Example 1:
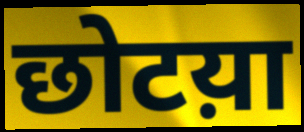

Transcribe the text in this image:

छोटय़ा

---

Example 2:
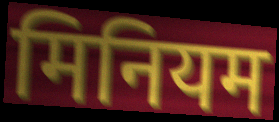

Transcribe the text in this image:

मिनियम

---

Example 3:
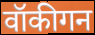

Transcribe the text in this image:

वॉकीगन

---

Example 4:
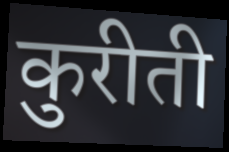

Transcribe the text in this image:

कुरीती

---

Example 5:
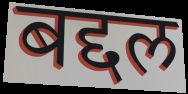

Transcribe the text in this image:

बद्दल